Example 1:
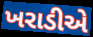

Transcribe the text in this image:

ખરાડીએ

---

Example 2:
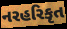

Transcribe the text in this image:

નરહરિકૃત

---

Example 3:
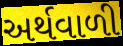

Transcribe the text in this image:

અર્થવાળી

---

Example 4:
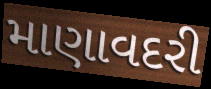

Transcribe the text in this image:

માણાવદરી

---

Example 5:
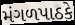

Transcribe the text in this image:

મંગળપાઠકે